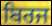
ਬਿਰਜ